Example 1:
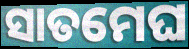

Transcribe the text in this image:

ସାତମେଘ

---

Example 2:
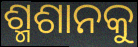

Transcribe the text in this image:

ଶ୍ମଶାନକୁ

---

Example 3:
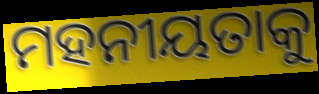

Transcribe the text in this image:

ମହନୀୟତାକୁ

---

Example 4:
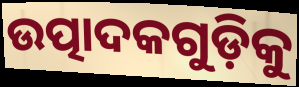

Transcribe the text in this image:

ଉତ୍ପାଦକଗୁଡ଼ିକୁ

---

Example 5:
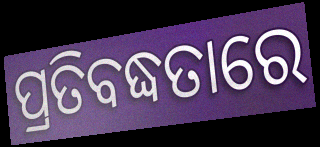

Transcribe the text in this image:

ପ୍ରତିବଦ୍ଧତାରେ